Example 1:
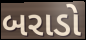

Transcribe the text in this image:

બરાડો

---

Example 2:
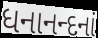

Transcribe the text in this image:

ધનાનન્દનાં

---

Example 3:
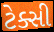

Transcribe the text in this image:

ટેક્સી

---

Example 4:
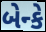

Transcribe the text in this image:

બેન્કે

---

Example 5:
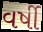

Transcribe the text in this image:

વર્ષી